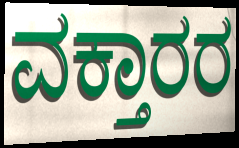
ವಕ್ತಾರರ